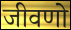
जीवणो